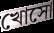
খোসো